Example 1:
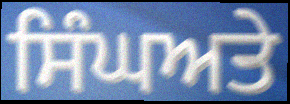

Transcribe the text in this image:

ਸਿੰਘਅਤੇ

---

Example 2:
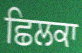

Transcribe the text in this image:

ਛਿਲਕਾ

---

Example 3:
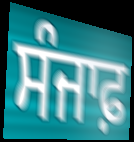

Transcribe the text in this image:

ਸੰਜਾਫ਼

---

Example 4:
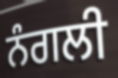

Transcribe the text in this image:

ਨੰਗਲੀ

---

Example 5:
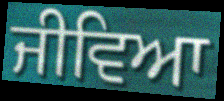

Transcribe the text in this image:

ਜੀਵਿਆ